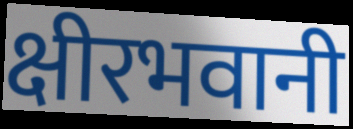
क्षीरभवानी